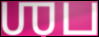
ஶப